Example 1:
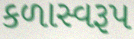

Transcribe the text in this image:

કળાસ્વરૂપ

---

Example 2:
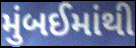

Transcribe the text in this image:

મુંબઈમાંથી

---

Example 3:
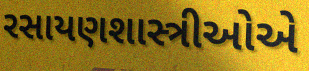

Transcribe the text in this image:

રસાયણશાસ્ત્રીઓએ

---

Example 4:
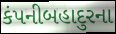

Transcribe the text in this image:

કંપનીબહાદુરના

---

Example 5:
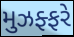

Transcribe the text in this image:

મુઝફ્ફરે